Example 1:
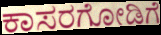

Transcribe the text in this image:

ಕಾಸರಗೋಡಿಗೆ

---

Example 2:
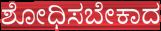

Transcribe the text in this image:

ಶೋಧಿಸಬೇಕಾದ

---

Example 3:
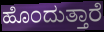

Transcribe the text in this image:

ಹೊಂದುತ್ತಾರೆ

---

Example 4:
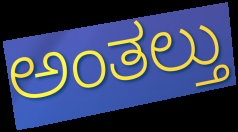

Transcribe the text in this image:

ಅಂತಲ್ತು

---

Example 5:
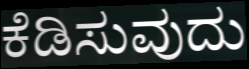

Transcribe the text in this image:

ಕೆಡಿಸುವುದು